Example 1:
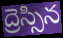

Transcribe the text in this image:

ద్రెస్సిన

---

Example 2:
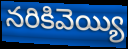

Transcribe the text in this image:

నరికివెయ్యి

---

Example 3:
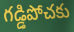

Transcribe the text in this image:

గడ్డిపోచకు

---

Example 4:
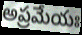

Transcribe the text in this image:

అప్రమేయః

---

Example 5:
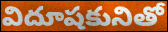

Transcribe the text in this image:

విదూషకునితో